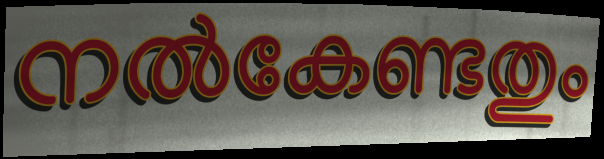
നൽകേണ്ടതും